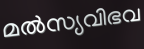
മൽസ്യവിഭവ